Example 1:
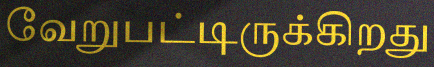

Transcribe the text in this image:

வேறுபட்டிருக்கிறது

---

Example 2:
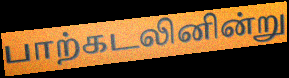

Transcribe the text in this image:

பாற்கடலினின்று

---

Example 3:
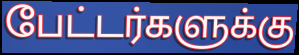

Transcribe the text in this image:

பேட்டர்களுக்கு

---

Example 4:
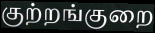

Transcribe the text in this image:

குற்றங்குறை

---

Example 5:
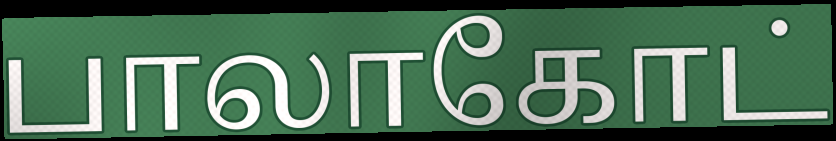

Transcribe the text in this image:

பாலாகோட்